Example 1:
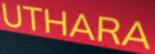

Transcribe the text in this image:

UTHARA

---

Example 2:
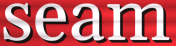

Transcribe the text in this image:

seam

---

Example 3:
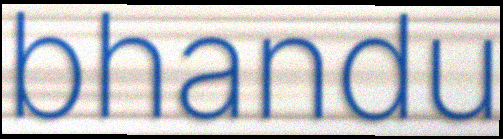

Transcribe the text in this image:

bhandu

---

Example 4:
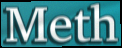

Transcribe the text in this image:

Meth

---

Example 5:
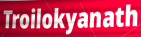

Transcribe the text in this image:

Troilokyanath